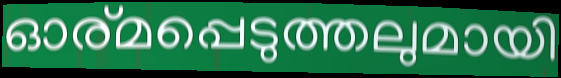
ഓര്മപ്പെടുത്തലുമായി